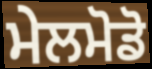
ਮੇਲਮੋਡੋ